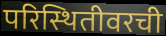
परिस्थितीवरची